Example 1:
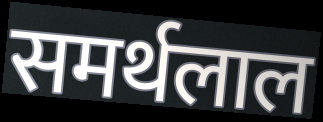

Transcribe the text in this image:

समर्थलाल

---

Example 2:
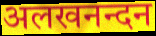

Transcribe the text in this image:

अलखनन्दन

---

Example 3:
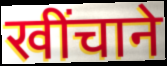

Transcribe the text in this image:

खींचाने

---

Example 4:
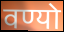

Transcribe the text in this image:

वण्यो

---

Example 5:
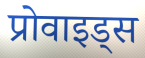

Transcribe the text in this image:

प्रोवाइड्स